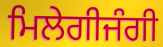
ਮਿਲੇਗੀਜੰਗੀ